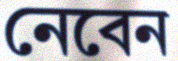
নেবেন